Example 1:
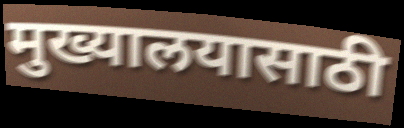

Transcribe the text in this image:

मुख्यालयासाठी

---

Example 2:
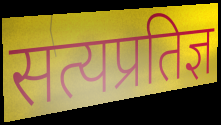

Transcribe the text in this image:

सत्यप्रतिज्ञ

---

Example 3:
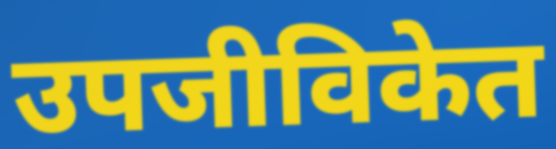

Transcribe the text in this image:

उपजीविकेत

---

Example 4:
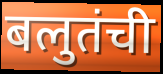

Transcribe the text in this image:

बलुतंची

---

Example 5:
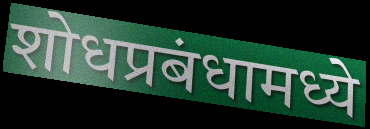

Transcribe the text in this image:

शोधप्रबंधामध्ये